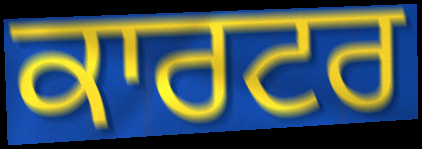
ਕਾਰਟਰ